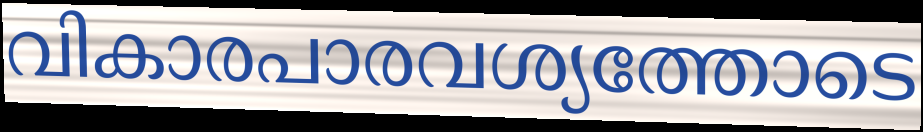
വികാരപാരവശ്യത്തോടെ